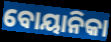
ବୋୟାନିକା